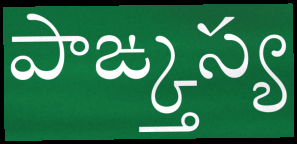
పాఙ్క్తస్య